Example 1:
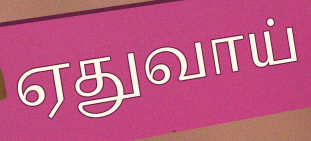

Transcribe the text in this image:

ஏதுவாய்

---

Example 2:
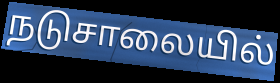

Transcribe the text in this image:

நடுசாலையில்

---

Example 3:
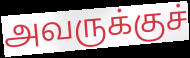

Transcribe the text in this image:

அவருக்குச்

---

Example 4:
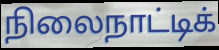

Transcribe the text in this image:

நிலைநாட்டிக்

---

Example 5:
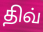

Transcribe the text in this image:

திவ்